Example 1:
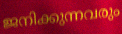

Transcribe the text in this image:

ജനിക്കുന്നവരും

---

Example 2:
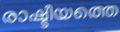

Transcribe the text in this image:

രാഷ്ടീയത്തെ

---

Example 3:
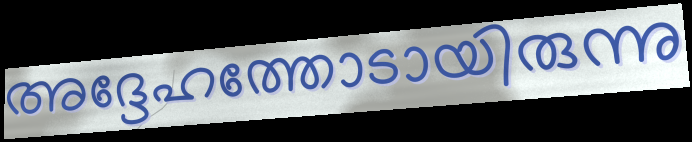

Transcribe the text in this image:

അദ്ദേഹത്തോടായിരുന്നു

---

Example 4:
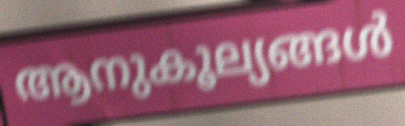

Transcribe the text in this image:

ആനുകൂല്യങ്ങൾ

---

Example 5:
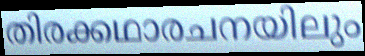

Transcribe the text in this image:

തിരക്കഥാരചനയിലും